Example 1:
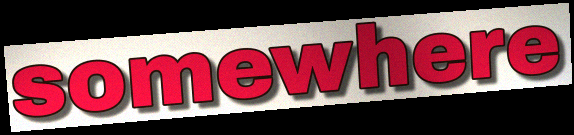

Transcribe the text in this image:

somewhere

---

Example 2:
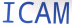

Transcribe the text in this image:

ICAM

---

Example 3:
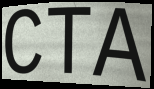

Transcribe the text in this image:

CTA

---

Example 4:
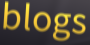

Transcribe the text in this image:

blogs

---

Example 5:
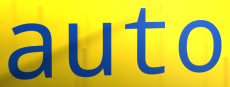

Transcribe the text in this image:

auto